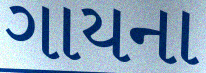
ગાયના